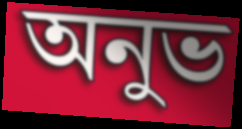
অনুভ